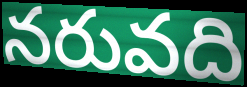
నరువది